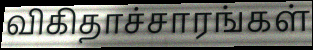
விகிதாச்சாரங்கள்